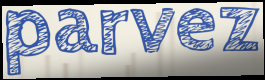
parvez